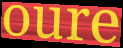
oure